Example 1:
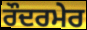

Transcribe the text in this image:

ਰੌਦਰਮੇਰ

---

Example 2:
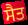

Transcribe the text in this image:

ਸੈਤ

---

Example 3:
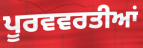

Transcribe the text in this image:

ਪੂਰਵਵਰਤੀਆਂ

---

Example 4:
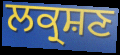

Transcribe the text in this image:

ਲਕ੍ਰਸ਼ਣ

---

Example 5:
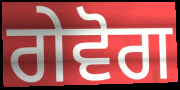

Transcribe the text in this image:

ਗੇਵੋਗ